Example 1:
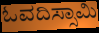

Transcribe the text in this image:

ಓವದಿಸ್ಸಾಮಿ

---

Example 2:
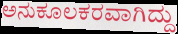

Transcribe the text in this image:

ಅನುಕೂಲಕರವಾಗಿದ್ದು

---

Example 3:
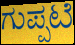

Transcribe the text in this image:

ಗುಪ್ಪಟೆ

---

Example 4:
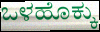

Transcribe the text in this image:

ಒಳಹೊಕ್ಕು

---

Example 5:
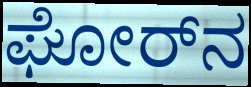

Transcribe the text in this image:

ಘೋರ್‌ನ